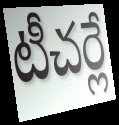
టీచర్లే